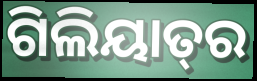
ଗିଲିୟାତ୍‍ର